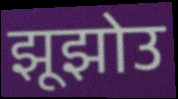
झूझोउ